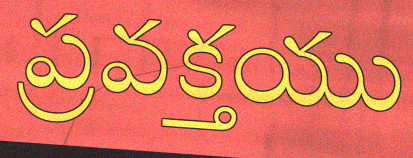
ప్రవక్తయు